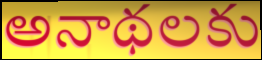
అనాథలకు